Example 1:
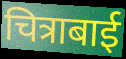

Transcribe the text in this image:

चित्राबाई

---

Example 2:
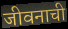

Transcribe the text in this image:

जीवनाची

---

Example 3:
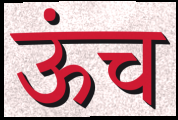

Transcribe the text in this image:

ऊंच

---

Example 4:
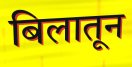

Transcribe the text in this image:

बिलातून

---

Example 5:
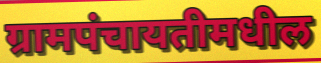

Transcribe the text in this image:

ग्रामपंचायतीमधील